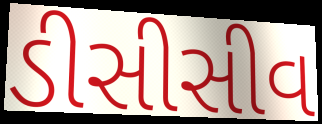
ડીસીસીવ